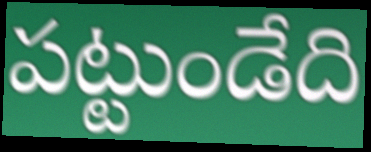
పట్టుండేది